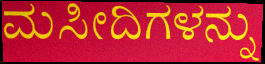
ಮಸೀದಿಗಳನ್ನು